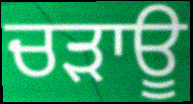
ਚੜਾਊ